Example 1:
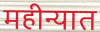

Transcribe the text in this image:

महीन्यात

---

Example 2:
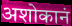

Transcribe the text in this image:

अशोकानं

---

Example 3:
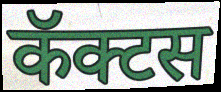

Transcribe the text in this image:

कॅक्टस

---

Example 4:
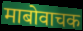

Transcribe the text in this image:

माबोवाचक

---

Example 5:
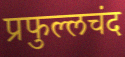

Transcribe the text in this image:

प्रफुल्लचंद